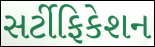
સર્ટીફિકેશન